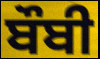
ਬੌਬੀ